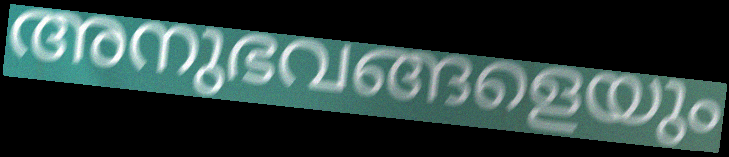
അനുഭവങ്ങളെയും